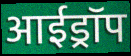
आईड्रॉप